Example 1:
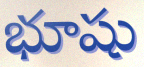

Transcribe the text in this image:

భూషు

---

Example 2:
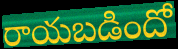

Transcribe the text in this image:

రాయబడిందో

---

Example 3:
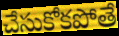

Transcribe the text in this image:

చేసుకోకపోతే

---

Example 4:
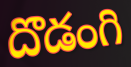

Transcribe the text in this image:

దొడంగి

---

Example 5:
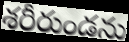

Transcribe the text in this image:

శరీరుండను